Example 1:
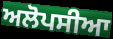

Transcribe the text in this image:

ਅਲੋਪਸੀਆ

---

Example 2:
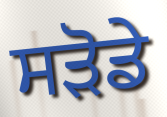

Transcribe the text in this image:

ਸੜੋਡੇ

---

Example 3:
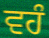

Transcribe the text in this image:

ਵਹੰ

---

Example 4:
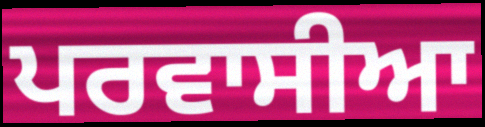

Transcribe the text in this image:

ਪਰਵਾਸੀਆ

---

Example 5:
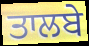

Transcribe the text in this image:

ਤਾਲਬੇ